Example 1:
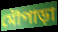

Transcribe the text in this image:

মৌপাড়া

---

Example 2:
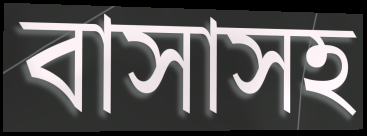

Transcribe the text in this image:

বাসাসহ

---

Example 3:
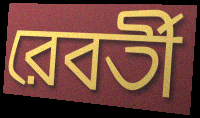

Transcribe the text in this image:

রেবর্তী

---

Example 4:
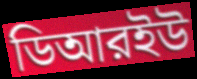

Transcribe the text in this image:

ডিআরইউ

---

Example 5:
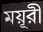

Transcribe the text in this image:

ময়ূরী